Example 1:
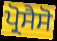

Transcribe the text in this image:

ਪ੍ਰੋਸੈਸੋ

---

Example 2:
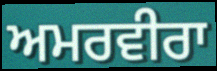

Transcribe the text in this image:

ਅਮਰਵੀਰਾ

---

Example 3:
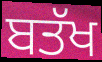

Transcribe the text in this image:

ਬਤੱਖ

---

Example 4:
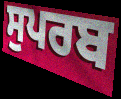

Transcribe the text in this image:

ਸੁਪਰਬ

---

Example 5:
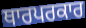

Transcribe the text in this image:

ਥਾਰਪਰਕਾਰ